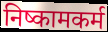
निष्कामकर्म